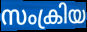
സംക്രിയ